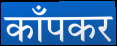
काँपकर